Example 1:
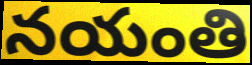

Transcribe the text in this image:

నయంతి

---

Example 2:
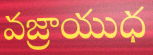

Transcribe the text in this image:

వజ్రాయుధ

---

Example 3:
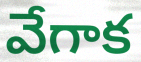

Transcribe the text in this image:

వేగాక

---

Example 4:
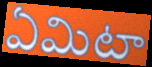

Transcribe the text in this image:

ఏమిటా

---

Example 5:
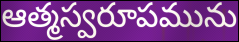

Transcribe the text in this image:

ఆత్మస్వరూపమును